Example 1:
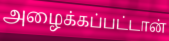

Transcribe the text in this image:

அழைக்கப்பட்டான்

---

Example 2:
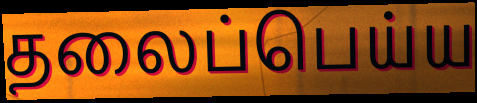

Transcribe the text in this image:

தலைப்பெய்ய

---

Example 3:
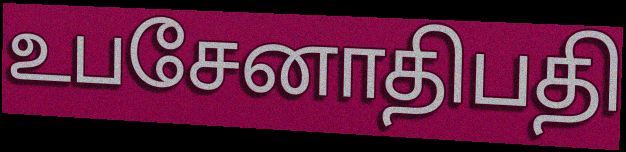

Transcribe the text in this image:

உபசேனாதிபதி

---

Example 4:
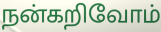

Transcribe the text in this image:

நன்கறிவோம்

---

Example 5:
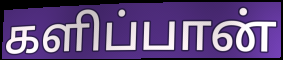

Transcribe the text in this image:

களிப்பான்